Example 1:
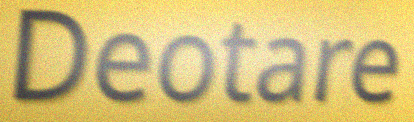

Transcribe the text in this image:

Deotare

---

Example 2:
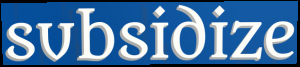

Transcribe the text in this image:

subsidize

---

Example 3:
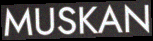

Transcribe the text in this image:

MUSKAN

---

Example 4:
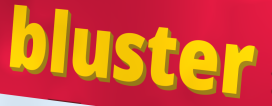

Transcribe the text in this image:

bluster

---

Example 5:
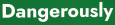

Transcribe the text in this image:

Dangerously